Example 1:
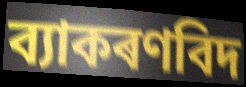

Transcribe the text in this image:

ব্যাকৰণবিদ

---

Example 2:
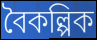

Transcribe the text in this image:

বৈকল্পিক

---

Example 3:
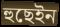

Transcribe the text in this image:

হুছেইন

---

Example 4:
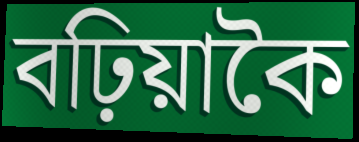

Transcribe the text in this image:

বঢ়িয়াকৈ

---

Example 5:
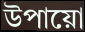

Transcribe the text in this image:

উপায়ো